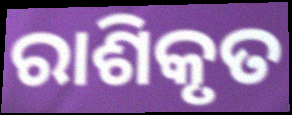
ରାଶିକୃତ